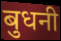
बुधनी